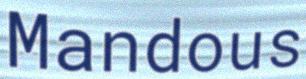
Mandous